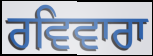
ਰਵਿਵਾਰਾ